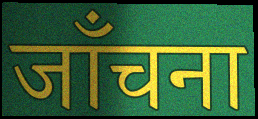
जाँचना